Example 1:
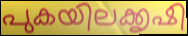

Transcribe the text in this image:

പുകയിലക്കൃഷി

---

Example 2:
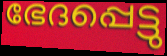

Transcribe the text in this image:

ഭേദപ്പെട്ടു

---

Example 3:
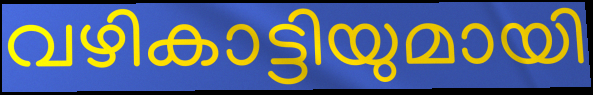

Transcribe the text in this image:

വഴികാട്ടിയുമായി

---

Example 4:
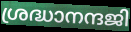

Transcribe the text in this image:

ശ്രദ്ധാനന്ദജി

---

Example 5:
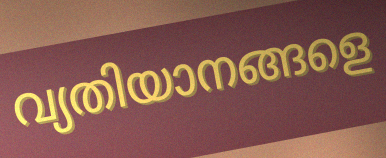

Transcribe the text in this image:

വ്യതിയാനങ്ങളെ